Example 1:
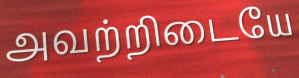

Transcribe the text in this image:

அவற்றிடையே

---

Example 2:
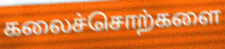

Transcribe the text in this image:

கலைச்சொற்களை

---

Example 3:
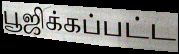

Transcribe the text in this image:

பூஜிக்கப்பட்ட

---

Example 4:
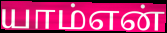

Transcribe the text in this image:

யாம்என்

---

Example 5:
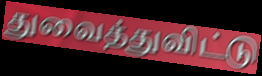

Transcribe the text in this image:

துவைத்துவிட்டு